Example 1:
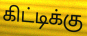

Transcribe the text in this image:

கிட்டிக்கு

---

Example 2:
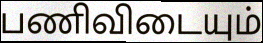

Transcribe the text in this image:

பணிவிடையும்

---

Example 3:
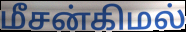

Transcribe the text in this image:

மீசன்கிமல்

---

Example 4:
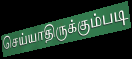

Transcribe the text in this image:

செய்யாதிருக்கும்படி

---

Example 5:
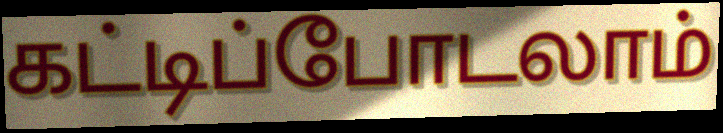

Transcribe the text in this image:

கட்டிப்போடலாம்